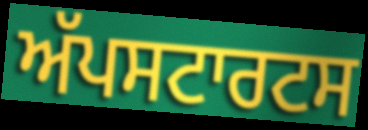
ਅੱਪਸਟਾਰਟਸ